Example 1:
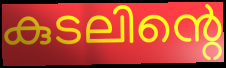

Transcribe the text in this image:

കുടലിന്റെ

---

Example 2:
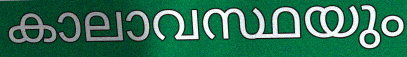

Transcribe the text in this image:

കാലാവസ്ഥയും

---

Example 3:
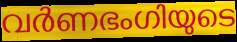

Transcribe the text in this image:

വർണഭംഗിയുടെ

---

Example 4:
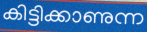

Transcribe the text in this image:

കിട്ടിക്കാണുന്ന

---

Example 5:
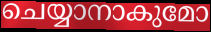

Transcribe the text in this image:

ചെയ്യാനാകുമോ